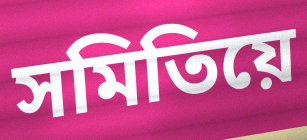
সমিতিয়ে